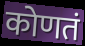
कोणतं